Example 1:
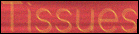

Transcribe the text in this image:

Tissues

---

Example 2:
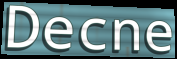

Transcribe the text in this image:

Decne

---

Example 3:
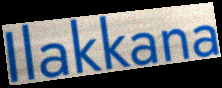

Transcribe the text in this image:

Ilakkana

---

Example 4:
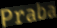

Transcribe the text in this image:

Praba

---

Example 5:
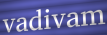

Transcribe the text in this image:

vadivam